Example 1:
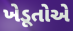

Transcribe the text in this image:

ખેડૂતોએ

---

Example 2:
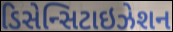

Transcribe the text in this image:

ડિસેન્સિટાઇઝેશન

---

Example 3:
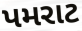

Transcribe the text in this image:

પમરાટ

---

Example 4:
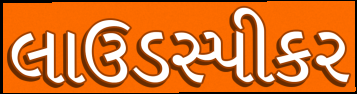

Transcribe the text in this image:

લાઉડસ્પીકર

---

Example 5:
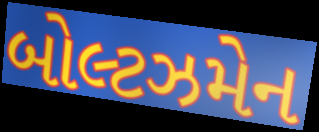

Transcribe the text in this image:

બોલ્ટઝમેન